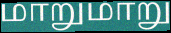
மாறுமாறு